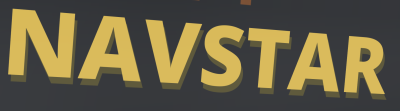
NAVSTAR